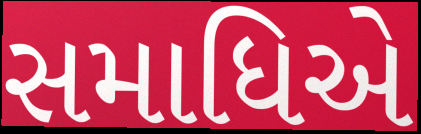
સમાધિએ